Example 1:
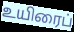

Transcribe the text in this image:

உயிரைப்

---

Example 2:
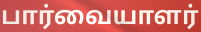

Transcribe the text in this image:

பார்வையாளர்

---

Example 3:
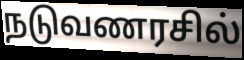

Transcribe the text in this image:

நடுவணரசில்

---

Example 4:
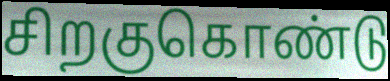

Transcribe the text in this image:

சிறகுகொண்டு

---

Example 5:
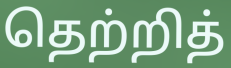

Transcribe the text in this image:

தெற்றித்